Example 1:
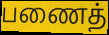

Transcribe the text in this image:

பணைத்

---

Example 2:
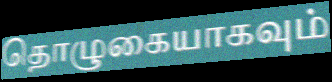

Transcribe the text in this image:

தொழுகையாகவும்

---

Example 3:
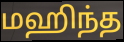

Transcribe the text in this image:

மஹிந்த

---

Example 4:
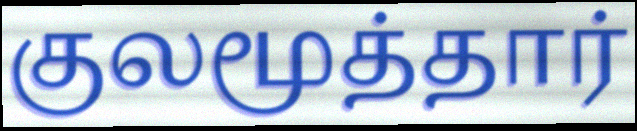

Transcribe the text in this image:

குலமூத்தார்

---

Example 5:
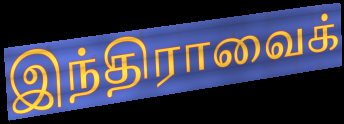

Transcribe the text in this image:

இந்திராவைக்